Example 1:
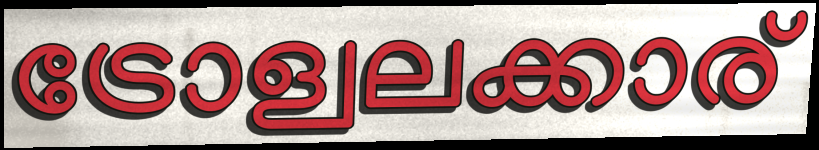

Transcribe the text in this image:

ട്രോള്വലക്കാര്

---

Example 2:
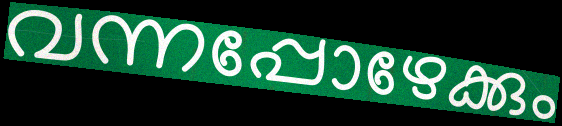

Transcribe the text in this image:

വന്നപ്പോഴേക്കും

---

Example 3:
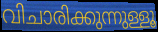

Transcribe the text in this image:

വിചാരിക്കുന്നുള്ളൂ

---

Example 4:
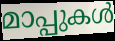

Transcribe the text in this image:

മാപ്പുകൾ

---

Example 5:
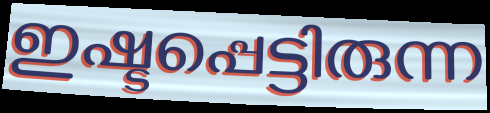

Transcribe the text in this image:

ഇഷ്ടപ്പെട്ടിരുന്ന